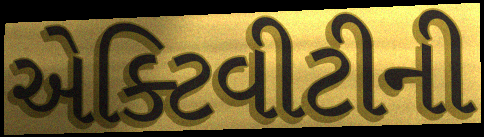
એક્ટિવીટીની